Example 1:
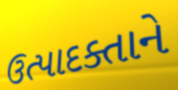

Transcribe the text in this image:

ઉત્પાદક્તાને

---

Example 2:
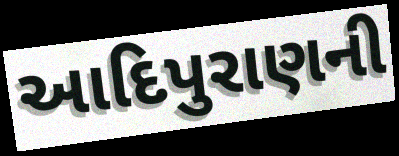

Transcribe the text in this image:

આદિપુરાણની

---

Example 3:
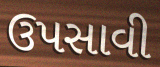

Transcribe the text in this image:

ઉપસાવી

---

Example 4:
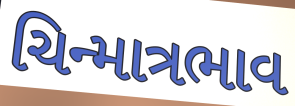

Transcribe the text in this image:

ચિન્માત્રભાવ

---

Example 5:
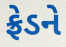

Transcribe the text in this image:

ફ્રેડને